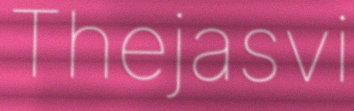
Thejasvi